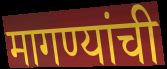
मागण्यांची